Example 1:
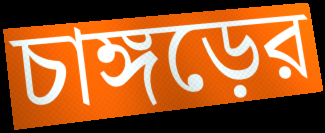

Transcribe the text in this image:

চাঙ্গড়ের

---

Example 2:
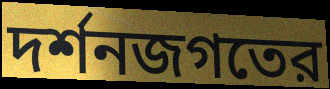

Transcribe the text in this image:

দর্শনজগতের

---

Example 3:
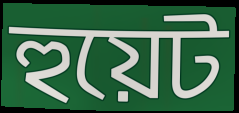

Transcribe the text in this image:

হুয়েট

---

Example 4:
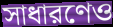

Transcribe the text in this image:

সাধারণেও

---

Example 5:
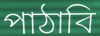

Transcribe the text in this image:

পাঠাবি